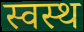
स्वस्थ